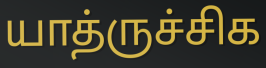
யாத்ருச்சிக